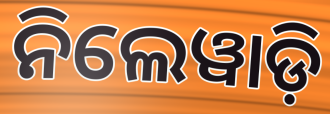
ନିଲେୱାଡ଼ି